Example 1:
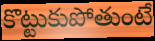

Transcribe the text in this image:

కొట్టుకుపోతుంటే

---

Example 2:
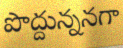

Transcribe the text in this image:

పొద్దున్ననగా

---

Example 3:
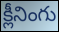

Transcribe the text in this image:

క్లీనింగు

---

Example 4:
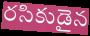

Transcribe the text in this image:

రసికుడైన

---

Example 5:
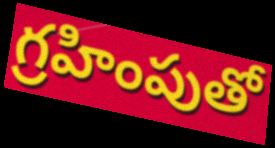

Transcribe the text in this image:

గ్రహింపుతో